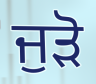
ਜੁੜੋ